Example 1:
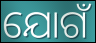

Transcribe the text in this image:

ଯୋଗଁ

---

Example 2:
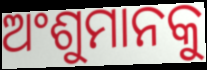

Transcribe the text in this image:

ଅଂଶୁମାନକୁ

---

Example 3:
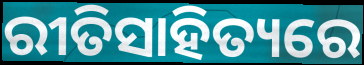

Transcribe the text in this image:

ରୀତିସାହିତ୍ୟରେ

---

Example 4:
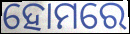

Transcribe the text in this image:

ହୋମରେ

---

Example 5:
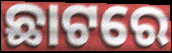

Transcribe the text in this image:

ଛାଟରେ